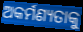
ଅକର୍ମଣ୍ୟତାକୁ